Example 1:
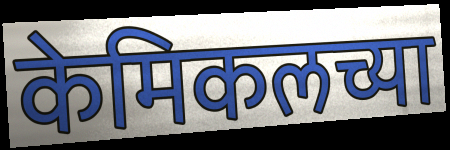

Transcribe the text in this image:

केमिकलच्या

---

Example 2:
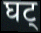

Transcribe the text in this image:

घट्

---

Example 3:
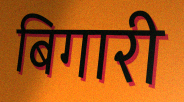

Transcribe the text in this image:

बिगारी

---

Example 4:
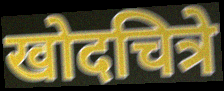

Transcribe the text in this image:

खोदचित्रे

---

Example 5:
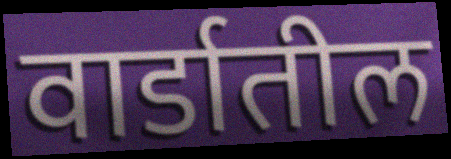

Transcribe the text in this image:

वार्डातील